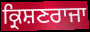
ਕ੍ਰਿਸ਼ਣਰਾਜਾ